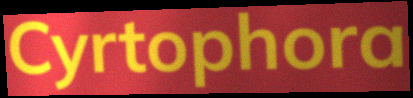
Cyrtophora